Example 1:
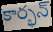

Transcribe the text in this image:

కార్భన్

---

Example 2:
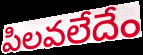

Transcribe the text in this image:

పిలవలేదేం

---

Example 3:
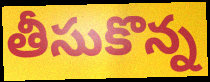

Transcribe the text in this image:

తీసుకొన్న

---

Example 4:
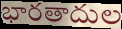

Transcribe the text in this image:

భారతాదుల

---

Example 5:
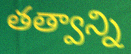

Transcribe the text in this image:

తత్వాన్ని